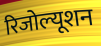
रिजोल्यूशन